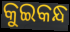
କୁଇକନ୍ଧ